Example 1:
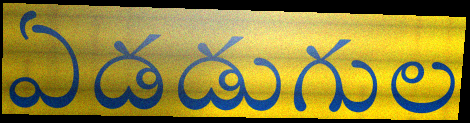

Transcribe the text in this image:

ఏడడుగుల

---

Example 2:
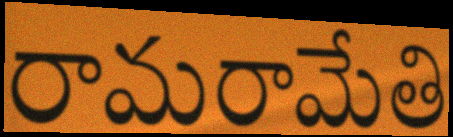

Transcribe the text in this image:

రామరామేతి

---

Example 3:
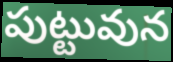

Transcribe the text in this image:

పుట్టువున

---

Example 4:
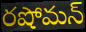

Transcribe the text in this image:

రషోమన్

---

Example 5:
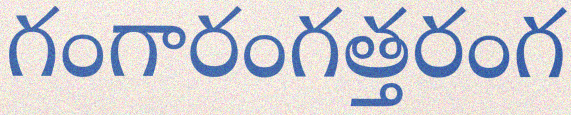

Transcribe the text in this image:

గంగారంగత్తరంగ